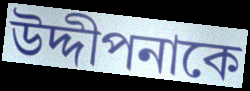
উদ্দীপনাকে